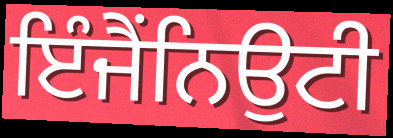
ਇੰਜੈਂਨਿਉਟੀ